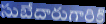
సుబేదారుగారికి